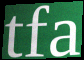
tfa